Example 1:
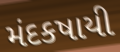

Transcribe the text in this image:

મંદકષાયી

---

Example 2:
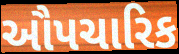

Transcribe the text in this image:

ઔપચારિક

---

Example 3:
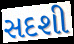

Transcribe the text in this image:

સદશી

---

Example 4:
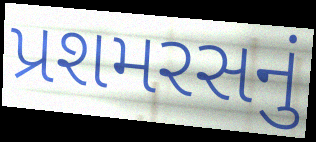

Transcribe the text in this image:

પ્રશમરસનું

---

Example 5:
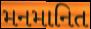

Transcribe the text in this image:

મનમાનિત